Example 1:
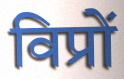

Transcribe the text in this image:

विप्रों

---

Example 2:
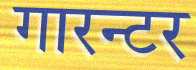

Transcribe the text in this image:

गारन्टर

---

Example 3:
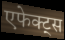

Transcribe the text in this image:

एफेक्ट्स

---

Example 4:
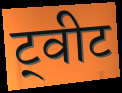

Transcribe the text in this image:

ट्‌वीट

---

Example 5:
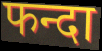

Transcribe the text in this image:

फन्दा